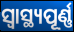
ସ୍ବାସ୍ଥ୍ୟପୂର୍ଣ୍ଣ